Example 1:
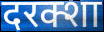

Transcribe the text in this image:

दरक्शा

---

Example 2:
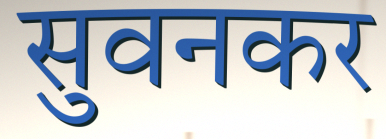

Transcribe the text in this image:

सुवनकर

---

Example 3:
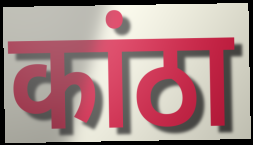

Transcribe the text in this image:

कांठा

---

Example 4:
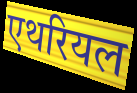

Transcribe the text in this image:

एथरियल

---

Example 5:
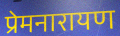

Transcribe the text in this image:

प्रेमनारायण